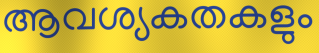
ആവശ്യകതകളും